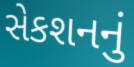
સેકશનનું